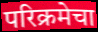
परिक्रमेचा